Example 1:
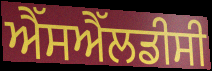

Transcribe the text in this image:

ਐੱਸਐੱਲਡੀਸੀ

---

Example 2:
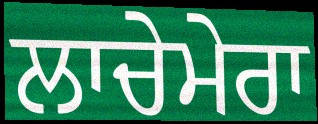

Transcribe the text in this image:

ਲਾਚੇਮੇਰਾ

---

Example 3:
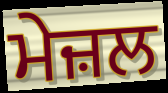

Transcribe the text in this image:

ਮੇਜ਼ਲ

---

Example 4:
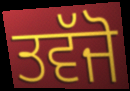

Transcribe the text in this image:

ਤਵੱਜੋ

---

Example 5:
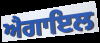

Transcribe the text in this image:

ਐਗਾਇਲ